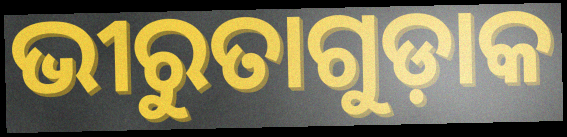
ଭୀରୁତାଗୁଡ଼ାକ